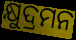
କ୍ଷୁଦ୍ରମନ